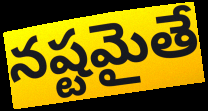
నష్టమైతే